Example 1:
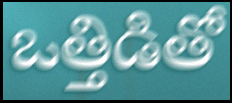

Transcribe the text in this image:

ఒత్తిడితో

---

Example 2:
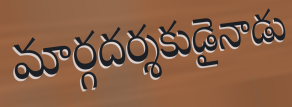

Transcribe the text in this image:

మార్గదర్శకుడైనాడు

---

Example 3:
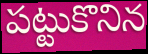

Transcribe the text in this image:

పట్టుకొనిన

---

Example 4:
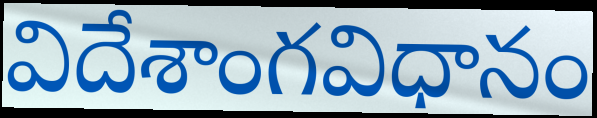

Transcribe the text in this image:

విదేశాంగవిధానం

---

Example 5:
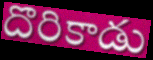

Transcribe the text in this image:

దొరికాడు